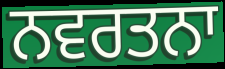
ਨਵਰਤਨਾ